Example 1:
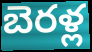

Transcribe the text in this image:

బెరళ్ల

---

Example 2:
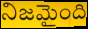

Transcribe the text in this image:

నిజమైంది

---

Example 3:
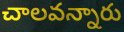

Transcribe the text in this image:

చాలవన్నారు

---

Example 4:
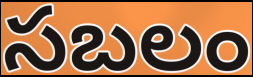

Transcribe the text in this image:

సబలం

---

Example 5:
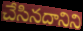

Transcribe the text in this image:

చేసినదానిని